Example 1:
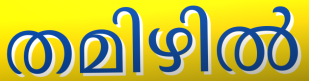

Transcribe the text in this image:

തമിഴിൽ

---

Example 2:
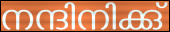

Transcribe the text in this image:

നന്ദിനിക്കു്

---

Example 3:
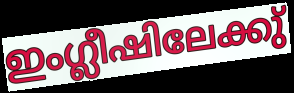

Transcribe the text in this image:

ഇംഗ്ലീഷിലേക്കു്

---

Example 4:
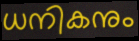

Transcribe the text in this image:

ധനികനും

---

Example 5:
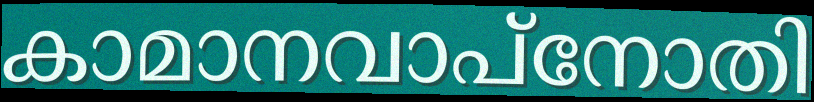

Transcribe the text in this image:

കാമാനവാപ്നോതി